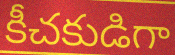
కీచకుడిగా